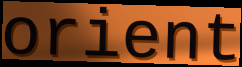
orient